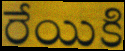
రేయికి